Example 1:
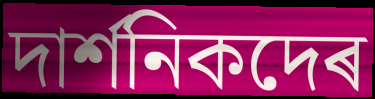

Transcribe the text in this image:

দাৰ্শনিকদেৰ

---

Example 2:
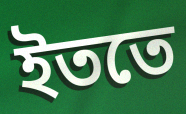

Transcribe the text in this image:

ইততে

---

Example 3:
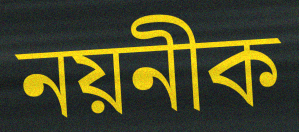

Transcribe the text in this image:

নয়নীক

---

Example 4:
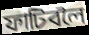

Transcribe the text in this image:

ফাটিবলৈ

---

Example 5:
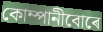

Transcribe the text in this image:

কোম্পানীবোৰে